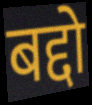
बद्दो